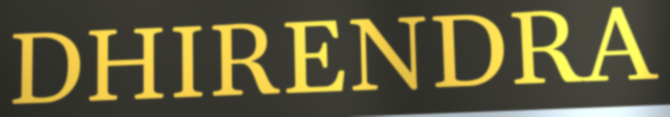
DHIRENDRA